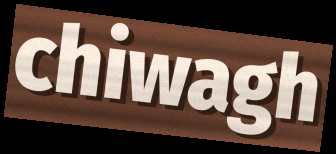
chiwagh